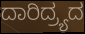
ದಾರಿದ್ರ್ಯದ